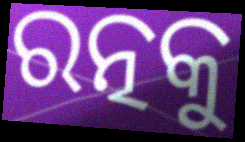
ରତ୍ନକୁ